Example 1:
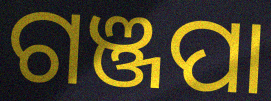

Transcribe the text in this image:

ଗଞ୍ଜପା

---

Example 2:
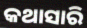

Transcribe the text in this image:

କଥାସାରି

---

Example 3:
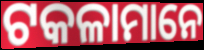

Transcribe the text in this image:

ଟକଳାମାନେ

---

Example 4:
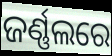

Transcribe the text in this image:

ଜର୍ଣ୍ଣଲରେ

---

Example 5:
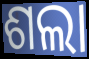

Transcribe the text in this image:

ଶଲା